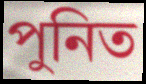
পুনিত